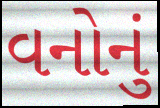
વનોનું